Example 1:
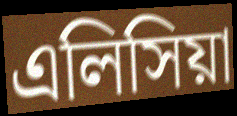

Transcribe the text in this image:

এলিসিয়া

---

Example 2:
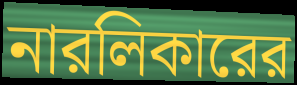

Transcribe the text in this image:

নারলিকারের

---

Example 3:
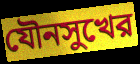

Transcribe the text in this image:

যৌনসুখের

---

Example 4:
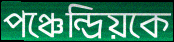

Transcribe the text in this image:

পঞ্চেন্দ্রিয়কে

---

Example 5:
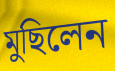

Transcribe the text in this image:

মুছিলেন